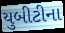
યુબીટીના